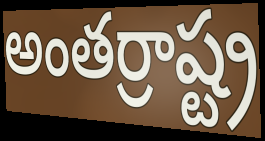
అంతర్రాష్ట్ర